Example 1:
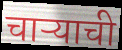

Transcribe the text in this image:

चाऱ्याची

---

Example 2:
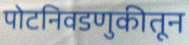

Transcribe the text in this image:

पोटनिवडणुकीतून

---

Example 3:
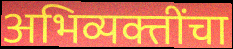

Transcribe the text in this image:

अभिव्यक्तींचा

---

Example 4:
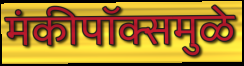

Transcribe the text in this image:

मंकीपॉक्समुळे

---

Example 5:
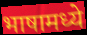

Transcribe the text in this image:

भाषामध्ये